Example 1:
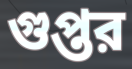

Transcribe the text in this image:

গুপ্তর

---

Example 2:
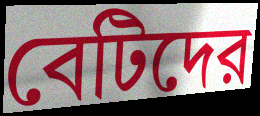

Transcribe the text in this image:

বেটিদের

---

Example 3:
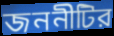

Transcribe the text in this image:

জননীটির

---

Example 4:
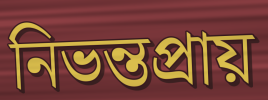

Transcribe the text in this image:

নিভন্তপ্রায়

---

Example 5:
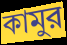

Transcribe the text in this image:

কামুর